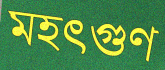
মহৎগুণ